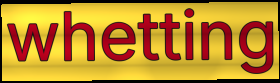
whetting